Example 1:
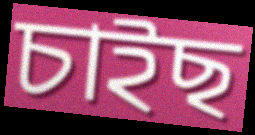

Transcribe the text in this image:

চাইছ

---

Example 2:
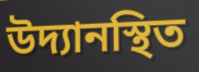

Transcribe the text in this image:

উদ্যানস্থিত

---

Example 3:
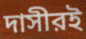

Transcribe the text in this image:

দাসীরই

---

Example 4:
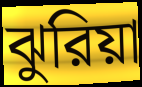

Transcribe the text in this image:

ঝুরিয়া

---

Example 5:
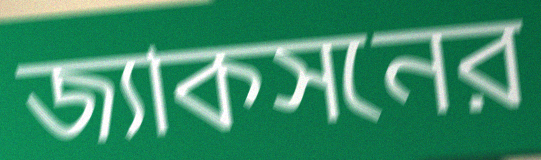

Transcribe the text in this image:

জ্যাকসনের